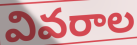
వివరాల